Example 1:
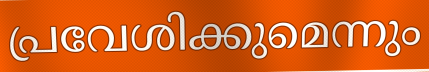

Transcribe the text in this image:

പ്രവേശിക്കുമെന്നും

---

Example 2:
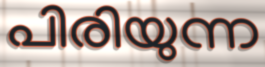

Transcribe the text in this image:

പിരിയുന്ന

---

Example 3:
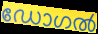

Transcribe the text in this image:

ഡോഗൽ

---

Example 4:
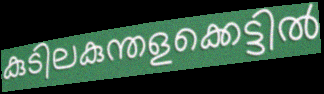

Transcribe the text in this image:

കുടിലകുന്തളക്കെട്ടിൽ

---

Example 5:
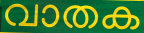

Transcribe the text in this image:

വാതക